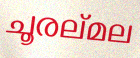
ചൂരല്മല